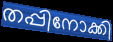
തപ്പിനോക്കി